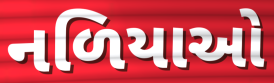
નળિયાઓ